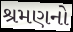
શ્રમણનો